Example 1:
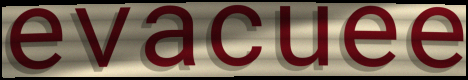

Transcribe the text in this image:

evacuee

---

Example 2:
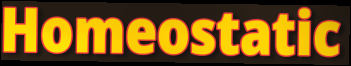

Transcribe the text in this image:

Homeostatic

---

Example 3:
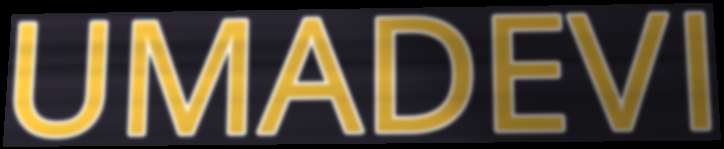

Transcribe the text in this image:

UMADEVI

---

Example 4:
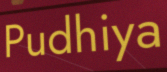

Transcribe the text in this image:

Pudhiya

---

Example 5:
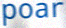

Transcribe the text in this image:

poar